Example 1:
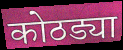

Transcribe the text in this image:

कोठड्या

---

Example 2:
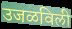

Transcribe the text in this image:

उजळविली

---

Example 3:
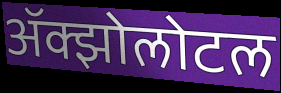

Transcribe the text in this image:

ॲक्झोलोटल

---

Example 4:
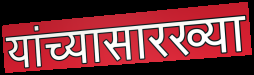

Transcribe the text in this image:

यांच्यासारख्या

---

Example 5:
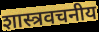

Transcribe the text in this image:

शास्त्रवचनीय